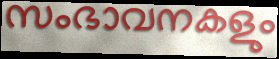
സംഭാവനകളും